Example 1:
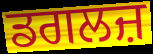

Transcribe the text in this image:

ਡਗਲਜ਼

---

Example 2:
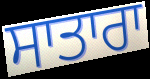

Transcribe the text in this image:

ਸਾਤਾਰਾ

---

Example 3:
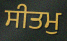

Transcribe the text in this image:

ਸੀਤਮੁ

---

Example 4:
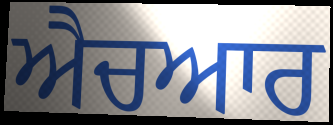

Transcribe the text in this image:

ਐਚਆਰ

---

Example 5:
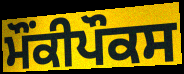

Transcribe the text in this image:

ਮੌਂਕੀਪੌਕਸ